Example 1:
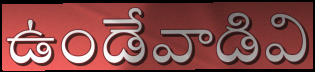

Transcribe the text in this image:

ఉండేవాడివి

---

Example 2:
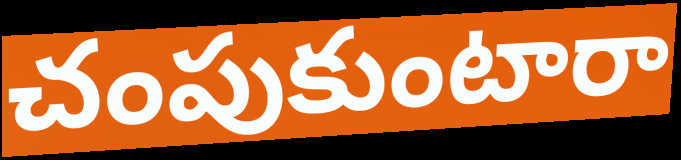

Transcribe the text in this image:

చంపుకుంటారా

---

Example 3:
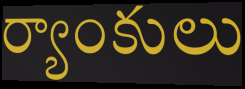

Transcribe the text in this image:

ర్యాంకులు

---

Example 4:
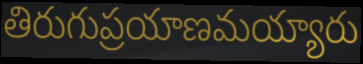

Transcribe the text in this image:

తిరుగుప్రయాణమయ్యారు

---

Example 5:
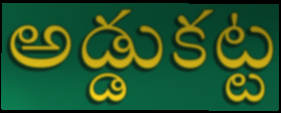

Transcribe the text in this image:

అడ్డుకట్ట